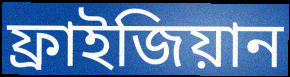
ফ্রাইজিয়ান